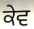
ਕੇਵ